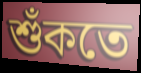
শুঁকতে